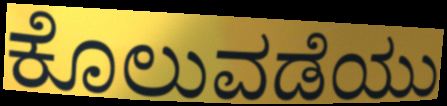
ಕೊಲುವಡೆಯು